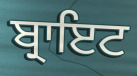
ਬ੍ਰਾਇਟ